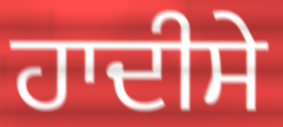
ਹਾਦੀਸੇ